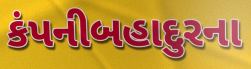
કંપનીબહાદુરના